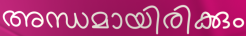
അന്ധമായിരിക്കും